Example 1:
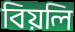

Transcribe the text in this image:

বিয়লি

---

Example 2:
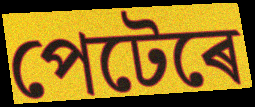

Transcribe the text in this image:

পেটেৰে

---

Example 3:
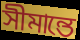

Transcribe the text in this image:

সীমান্তে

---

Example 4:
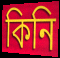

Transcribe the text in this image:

কিনি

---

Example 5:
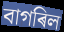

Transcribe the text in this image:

বাগৰিল